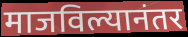
माजविल्यानंतर